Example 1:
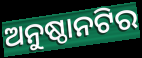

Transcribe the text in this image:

ଅନୁଷ୍ଠାନଟିର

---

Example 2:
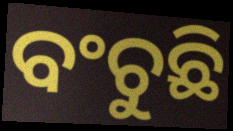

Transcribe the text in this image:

ବଂଚୁଛି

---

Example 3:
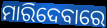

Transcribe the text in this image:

ମାରିଦେବାରେ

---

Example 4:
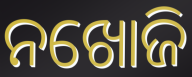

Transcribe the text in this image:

ନଖୋଜି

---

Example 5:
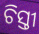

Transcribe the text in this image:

ଚିସ୍ତୀ